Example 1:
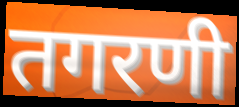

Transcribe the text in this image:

तगरणी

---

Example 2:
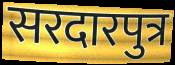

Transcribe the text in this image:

सरदारपुत्र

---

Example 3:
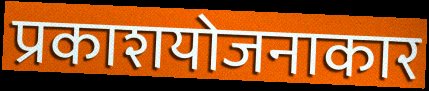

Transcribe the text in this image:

प्रकाशयोजनाकार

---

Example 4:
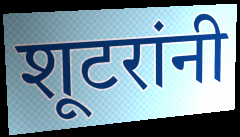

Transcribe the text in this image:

शूटरांनी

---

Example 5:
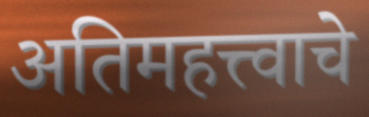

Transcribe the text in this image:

अतिमहत्त्वाचे